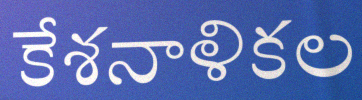
కేశనాళికల